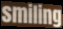
smiling